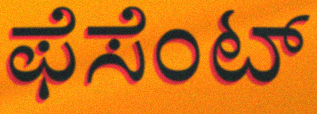
ಫೆಸೆಂಟ್